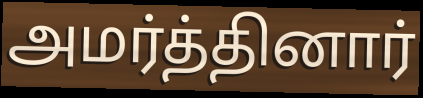
அமர்த்தினார்